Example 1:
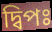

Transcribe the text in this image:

দ্বিপঃ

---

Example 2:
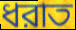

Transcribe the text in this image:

ধরাত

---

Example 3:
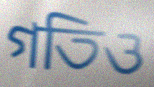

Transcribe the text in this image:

গতিও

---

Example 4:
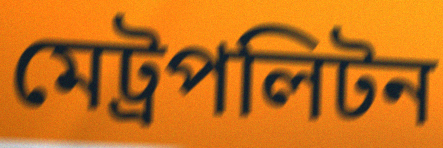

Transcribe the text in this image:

মেট্রপলিটন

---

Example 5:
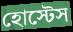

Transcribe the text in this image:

হোস্টেস